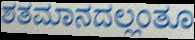
ಶತಮಾನದಲ್ಲಂತೂ